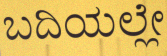
ಬದಿಯಲ್ಲೇ